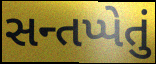
સન્તપ્પેતું